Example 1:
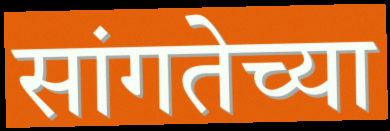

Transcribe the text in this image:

सांगतेच्या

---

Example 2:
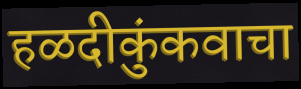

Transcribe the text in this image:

हळदीकुंकवाचा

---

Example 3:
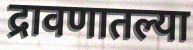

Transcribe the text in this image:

द्रावणातल्या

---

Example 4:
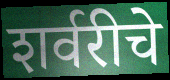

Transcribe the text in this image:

शर्वरीचे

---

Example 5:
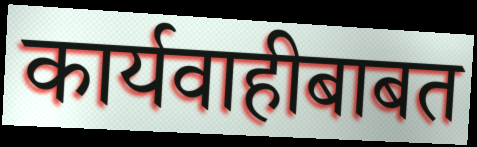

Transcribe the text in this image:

कार्यवाहीबाबत